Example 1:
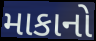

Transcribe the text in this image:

માકાનો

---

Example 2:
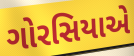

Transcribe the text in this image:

ગોરસિયાએ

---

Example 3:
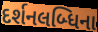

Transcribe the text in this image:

દર્શનલબ્ધિના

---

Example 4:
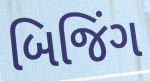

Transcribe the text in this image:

બિજિંગ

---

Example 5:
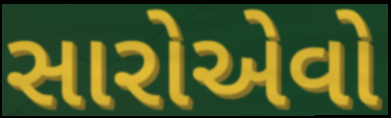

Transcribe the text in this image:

સારોએવો